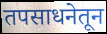
तपसाधनेतून